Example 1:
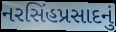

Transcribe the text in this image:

નરસિંહપ્રસાદનું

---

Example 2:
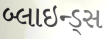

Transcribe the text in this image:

બ્લાઇન્ડ્સ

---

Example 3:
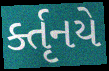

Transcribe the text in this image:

ર્ક્તૃનયે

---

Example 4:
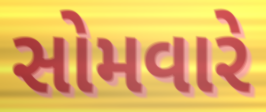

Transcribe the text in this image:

સોમવારે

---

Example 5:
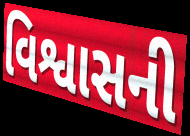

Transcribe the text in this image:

વિશ્વાસની